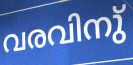
വരവിനു്